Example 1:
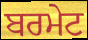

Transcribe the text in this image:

ਬਰਮੇਟ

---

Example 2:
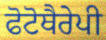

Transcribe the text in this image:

ਫੋਟੋਥੈਰੇਪੀ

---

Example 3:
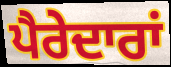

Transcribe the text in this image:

ਪੈਰੇਦਾਰਾਂ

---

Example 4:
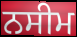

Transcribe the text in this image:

ਨਸੀਮ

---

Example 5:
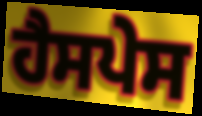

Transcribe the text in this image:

ਹੈਸਪੇਸ